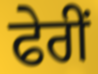
ਫੇਰੀਂ